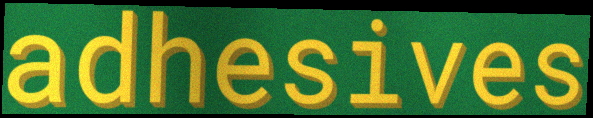
adhesives